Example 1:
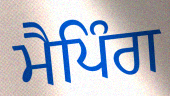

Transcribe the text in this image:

ਮੈਪਿੰਗ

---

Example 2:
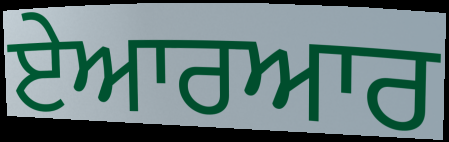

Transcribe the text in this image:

ਏਆਰਆਰ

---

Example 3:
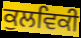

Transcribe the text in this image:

ਕੁਲਵਿਕੀ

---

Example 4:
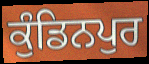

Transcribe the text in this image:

ਕੁੰਡਿਨਪੁਰ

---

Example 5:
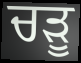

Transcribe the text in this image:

ਚੜੂ